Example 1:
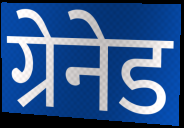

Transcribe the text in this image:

ग्रेनेड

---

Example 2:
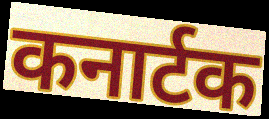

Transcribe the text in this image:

कनार्टक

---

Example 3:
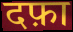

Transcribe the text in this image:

दफ़ा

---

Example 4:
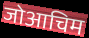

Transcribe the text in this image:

जोआचिम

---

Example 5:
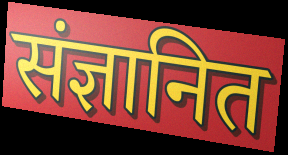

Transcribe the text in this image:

संज्ञानित